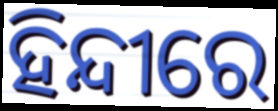
ହିନ୍ଦୀରେ